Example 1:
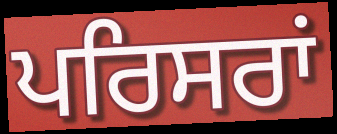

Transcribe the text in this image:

ਪਰਿਸਰਾਂ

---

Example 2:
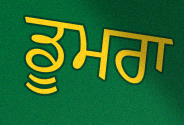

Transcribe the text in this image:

ਡੂਮਰਾ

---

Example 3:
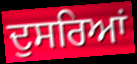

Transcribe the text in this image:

ਦੁਸਰਿਆਂ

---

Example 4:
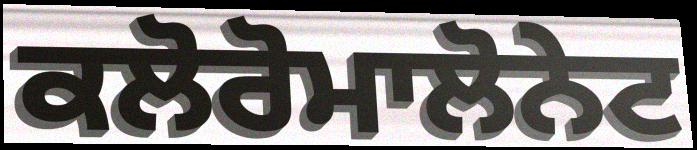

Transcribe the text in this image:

ਕਲੋਰੋਮਾਲੋਨੇਟ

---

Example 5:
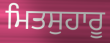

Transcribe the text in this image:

ਮਿਤਸੁਹਾਰੂ